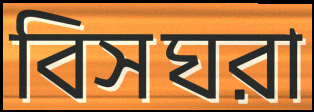
বিসঘরা